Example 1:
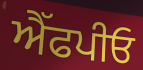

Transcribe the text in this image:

ਐੱਫਪੀਓ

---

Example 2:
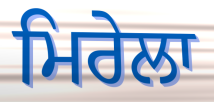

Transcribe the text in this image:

ਮਿਰੇਲਾ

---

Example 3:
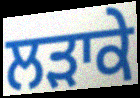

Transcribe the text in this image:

ਲੜਾਕੇ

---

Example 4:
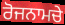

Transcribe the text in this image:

ਰੋਜਨਾਮਚੇ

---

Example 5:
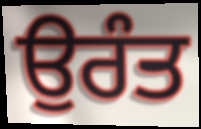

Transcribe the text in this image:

ਉਰੰਤ